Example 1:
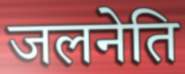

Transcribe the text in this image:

जलनेति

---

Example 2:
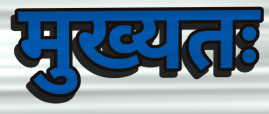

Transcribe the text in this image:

मुख्यतः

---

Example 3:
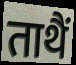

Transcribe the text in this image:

ताथैं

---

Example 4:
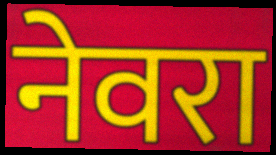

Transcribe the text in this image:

नेवरा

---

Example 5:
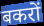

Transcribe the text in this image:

बकरों